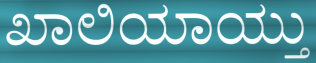
ಖಾಲಿಯಾಯ್ತು